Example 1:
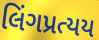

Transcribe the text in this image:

લિંગપ્રત્યય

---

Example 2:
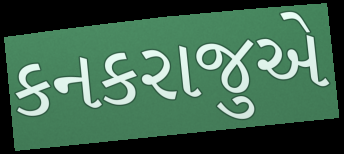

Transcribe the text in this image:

કનકરાજુએ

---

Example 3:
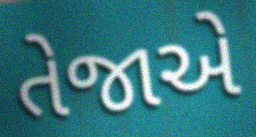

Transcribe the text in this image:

તેજાએ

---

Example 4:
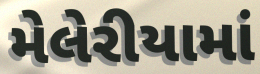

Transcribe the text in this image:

મેલેરીયામાં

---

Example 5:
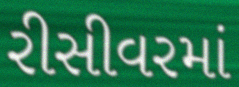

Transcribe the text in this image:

રીસીવરમાં